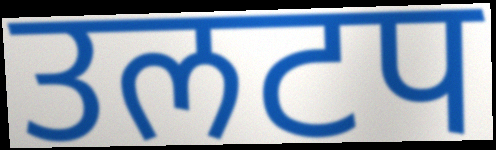
उलटप